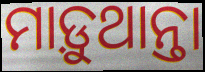
ମାଡ଼ୁଥାନ୍ତା